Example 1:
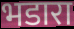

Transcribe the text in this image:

भडारा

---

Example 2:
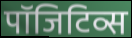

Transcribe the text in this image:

पॉजिटिव्स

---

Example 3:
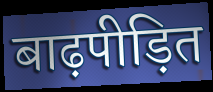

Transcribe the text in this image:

बाढ़पीड़ित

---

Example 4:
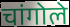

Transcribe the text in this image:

चांगोले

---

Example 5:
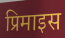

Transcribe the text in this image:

प्रिमाइस